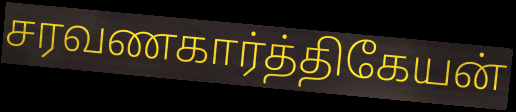
சரவணகார்த்திகேயன்